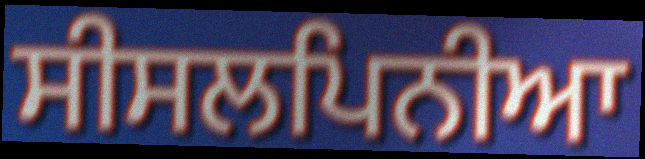
ਸੀਸਲਪਿਨੀਆ